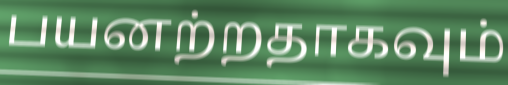
பயனற்றதாகவும்